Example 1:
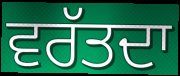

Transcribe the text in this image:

ਵਰੱਤਦਾ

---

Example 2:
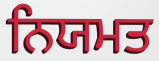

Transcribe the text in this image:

ਨਿਯਮਤ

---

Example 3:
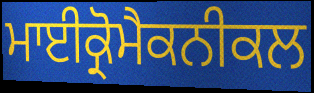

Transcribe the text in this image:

ਮਾਈਕ੍ਰੋਮੈਕਨੀਕਲ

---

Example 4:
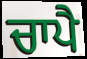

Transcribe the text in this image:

ਚਾਪੈ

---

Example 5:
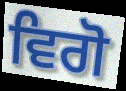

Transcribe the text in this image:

ਵਿਗੋ